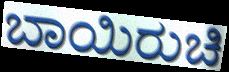
ಬಾಯಿರುಚಿ